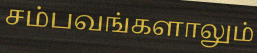
சம்பவங்களாலும்